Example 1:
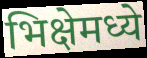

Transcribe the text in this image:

भिक्षेमध्ये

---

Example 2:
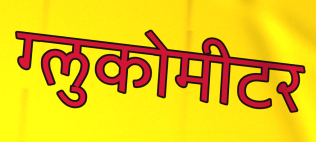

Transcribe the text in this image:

ग्लुकोमीटर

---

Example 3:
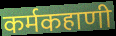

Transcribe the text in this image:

कर्मकहाणी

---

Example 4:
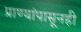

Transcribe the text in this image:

प्राण्यांपासूनही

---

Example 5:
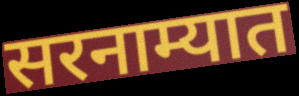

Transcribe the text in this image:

सरनाम्यात